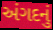
અંગદનું